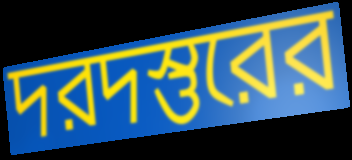
দরদস্তুরের